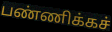
பண்ணிக்கச்